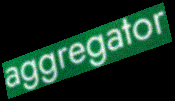
aggregator